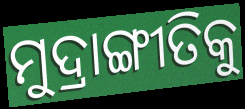
ମୁଦ୍ରାଙ୍ଗୀତିକୁ